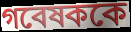
গবেষককে